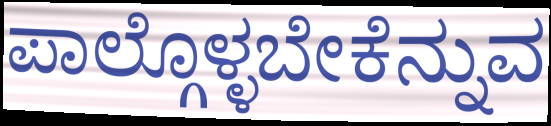
ಪಾಲ್ಗೊಳ್ಳಬೇಕೆನ್ನುವ